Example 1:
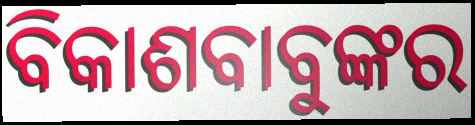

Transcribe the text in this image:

ବିକାଶବାବୁଙ୍କର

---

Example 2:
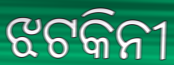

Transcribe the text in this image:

ଝଟକିନୀ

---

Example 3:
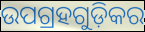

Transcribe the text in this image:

ଉପଗ୍ରହଗୁଡ଼ିକର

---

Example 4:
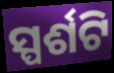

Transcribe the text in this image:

ସ୍ପର୍ଶଟି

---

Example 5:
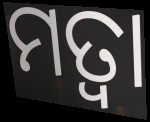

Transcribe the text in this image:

ମତ୍ୱା